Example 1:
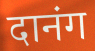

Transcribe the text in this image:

दानंग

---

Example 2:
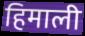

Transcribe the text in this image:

हिमाली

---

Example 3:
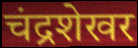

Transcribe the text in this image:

चंद्रशेखर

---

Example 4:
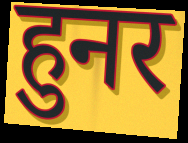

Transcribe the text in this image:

हुनर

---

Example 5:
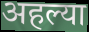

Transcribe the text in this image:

अहल्या